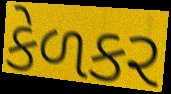
કેળકર